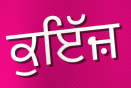
ਕੁਇੱਜ਼